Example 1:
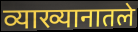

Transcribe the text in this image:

व्याख्यानातले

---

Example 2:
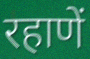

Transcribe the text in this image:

रहाणें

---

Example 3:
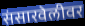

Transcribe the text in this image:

संसारवेलीवर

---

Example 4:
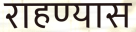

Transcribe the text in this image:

राहण्यास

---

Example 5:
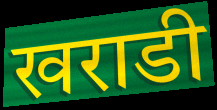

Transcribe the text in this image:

खराडी